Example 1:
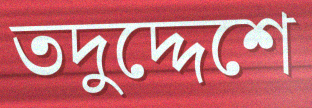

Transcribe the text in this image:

তদুদ্দেশে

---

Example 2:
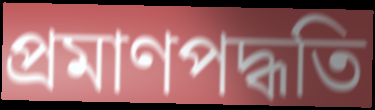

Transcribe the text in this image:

প্রমাণপদ্ধতি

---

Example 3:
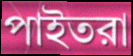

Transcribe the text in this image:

পাইতরা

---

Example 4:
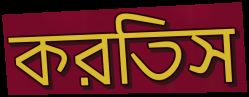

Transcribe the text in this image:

করতিস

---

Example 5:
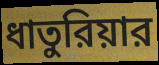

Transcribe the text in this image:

ধাতুরিয়ার